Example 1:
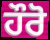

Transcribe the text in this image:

ਹੌਰੋ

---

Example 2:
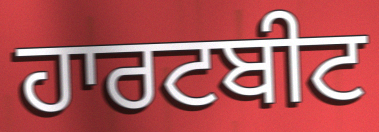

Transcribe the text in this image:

ਹਾਰਟਬੀਟ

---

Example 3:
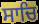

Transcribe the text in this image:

ਸਾਚਿ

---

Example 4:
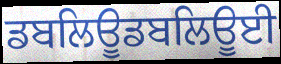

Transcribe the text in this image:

ਡਬਲਿਊਡਬਲਿਊਈ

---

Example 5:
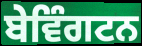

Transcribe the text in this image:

ਬੇਵਿੰਗਟਨ